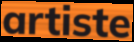
artiste